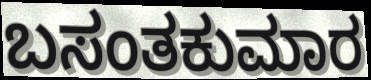
ಬಸಂತಕುಮಾರ